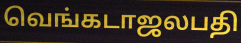
வெங்கடாஜலபதி